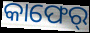
କାଫେର୍